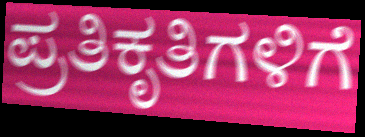
ಪ್ರತಿಕೃತಿಗಳಿಗೆ